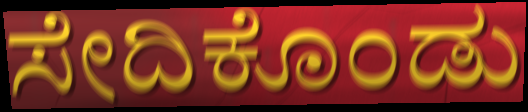
ಸೇದಿಕೊಂಡು